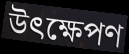
উৎক্ষেপণ